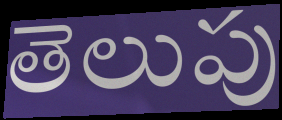
తెలుపు